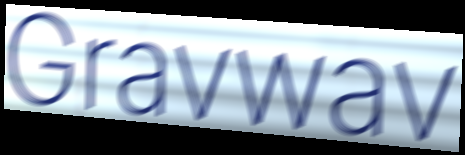
Gravwav